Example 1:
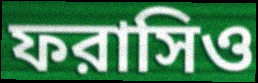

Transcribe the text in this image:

ফরাসিও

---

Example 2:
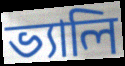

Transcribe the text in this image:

ভ্যালি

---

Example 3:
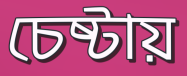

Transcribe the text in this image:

চেষ্টায়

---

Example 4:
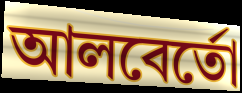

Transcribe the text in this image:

আলবের্তো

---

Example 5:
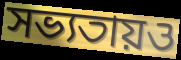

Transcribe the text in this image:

সভ্যতায়ও